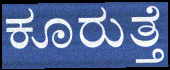
ಕೂರುತ್ತೆ